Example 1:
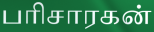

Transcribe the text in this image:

பரிசாரகன்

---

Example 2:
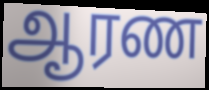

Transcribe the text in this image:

ஆரண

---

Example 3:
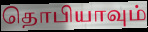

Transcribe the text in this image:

தொபியாவும்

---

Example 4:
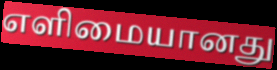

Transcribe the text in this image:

எளிமையானது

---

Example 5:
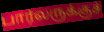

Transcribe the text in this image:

பார்லருக்குச்